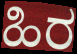
ಹಿರ